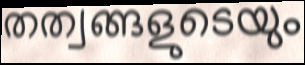
തത്വങ്ങളുടെയും